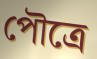
পৌত্রে